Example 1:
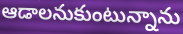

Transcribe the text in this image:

ఆడాలనుకుంటున్నాను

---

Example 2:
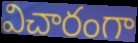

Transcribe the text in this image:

విచారంగా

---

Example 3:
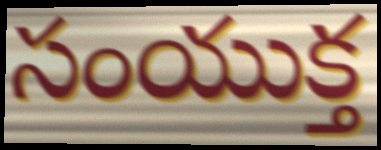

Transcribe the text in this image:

సంయుక్త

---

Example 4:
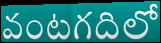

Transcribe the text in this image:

వంటగదిలో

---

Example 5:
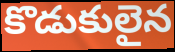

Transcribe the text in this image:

కొడుకులైన